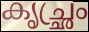
കൃച്ഛ്രം